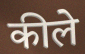
कीले